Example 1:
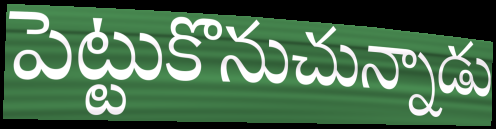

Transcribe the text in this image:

పెట్టుకొనుచున్నాడు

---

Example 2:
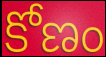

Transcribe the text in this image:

కోణం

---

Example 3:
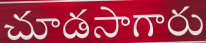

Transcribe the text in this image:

చూడసాగారు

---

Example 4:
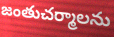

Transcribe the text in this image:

జంతుచర్మాలను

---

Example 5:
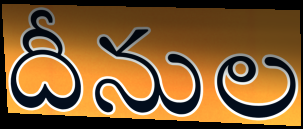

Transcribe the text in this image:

దీనుల